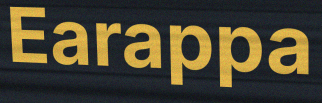
Earappa